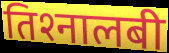
तिश्नालबी